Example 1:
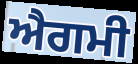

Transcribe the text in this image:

ਐਗਮੀ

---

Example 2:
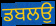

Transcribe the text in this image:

ਡਬਲਉ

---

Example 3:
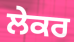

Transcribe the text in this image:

ਲੇਕਰ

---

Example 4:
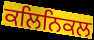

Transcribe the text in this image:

ਕਲਿਨਿਕਲ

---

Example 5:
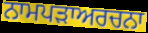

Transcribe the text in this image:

ਨਾਮਪੜਾਅਰਚਨਾ